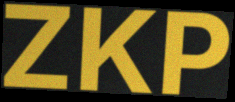
ZKP